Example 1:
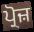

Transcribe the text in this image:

ਪ੍ਰੋਜ਼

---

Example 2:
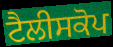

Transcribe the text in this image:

ਟੈਲੀਸਕੋਪ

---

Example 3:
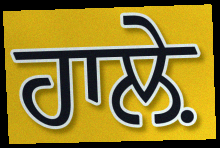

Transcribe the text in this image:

ਹਾਲ਼ੇ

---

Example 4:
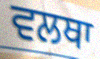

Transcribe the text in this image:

ਵਲਥਾ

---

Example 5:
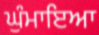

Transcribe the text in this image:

ਘੁੰਮਾਇਆ